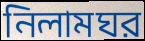
নিলামঘর